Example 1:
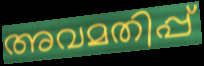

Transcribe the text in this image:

അവമതിപ്പ്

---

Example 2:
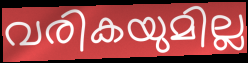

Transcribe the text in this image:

വരികയുമില്ല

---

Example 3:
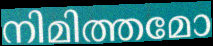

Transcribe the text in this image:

നിമിത്തമോ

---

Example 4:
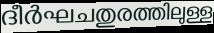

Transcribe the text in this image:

ദീർഘചതുരത്തിലുള്ള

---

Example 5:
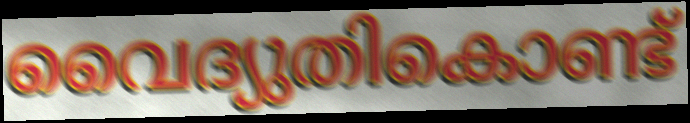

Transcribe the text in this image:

വൈദ്യുതികൊണ്ട്